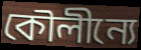
কৌলীন্যে